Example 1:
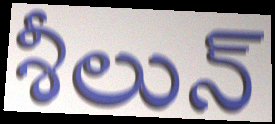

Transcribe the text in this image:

శీలున్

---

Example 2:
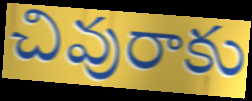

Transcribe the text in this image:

చివురాకు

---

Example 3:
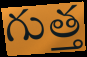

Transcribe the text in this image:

గుత్త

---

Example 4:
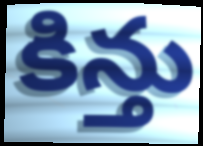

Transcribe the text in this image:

కిన్తు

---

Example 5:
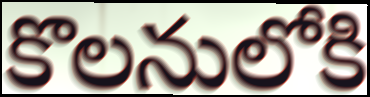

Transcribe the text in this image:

కొలనులోకి